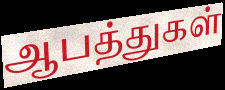
ஆபத்துகள்